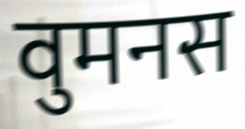
वुमनस